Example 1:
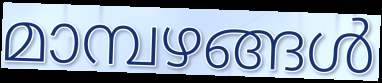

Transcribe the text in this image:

മാമ്പഴങ്ങൾ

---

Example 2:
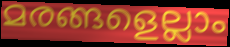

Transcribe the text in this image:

മരങ്ങളെല്ലാം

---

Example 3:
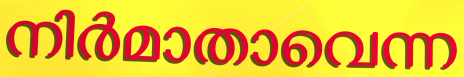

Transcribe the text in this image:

നിർമാതാവെന്ന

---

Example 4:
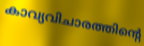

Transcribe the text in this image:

കാവ്യവിചാരത്തിന്റെ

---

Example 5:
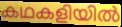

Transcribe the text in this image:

കഥകളിയിൽ